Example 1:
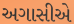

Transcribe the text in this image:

અગાસીએ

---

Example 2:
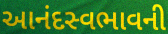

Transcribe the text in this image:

આનંદસ્વભાવની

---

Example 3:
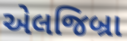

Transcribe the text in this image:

એલજિબ્રા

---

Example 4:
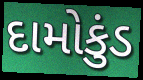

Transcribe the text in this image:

દામોકુંડ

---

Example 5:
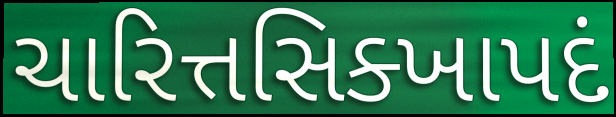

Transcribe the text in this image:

ચારિત્તસિક્ખાપદં